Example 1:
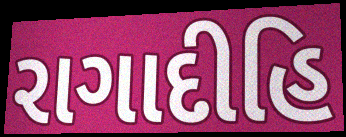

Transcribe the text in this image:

રાગાદીહિ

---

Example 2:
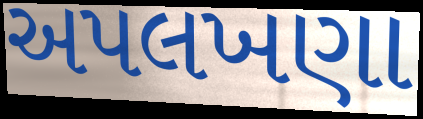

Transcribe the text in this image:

અપલખણા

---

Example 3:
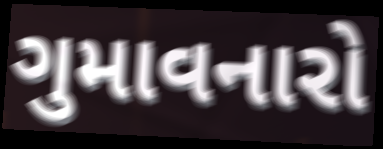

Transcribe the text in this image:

ગુમાવનારો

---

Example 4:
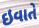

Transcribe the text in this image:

ઇવાતે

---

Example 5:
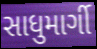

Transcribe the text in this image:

સાધુમાર્ગી